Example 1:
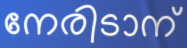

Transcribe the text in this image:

നേരിടാന്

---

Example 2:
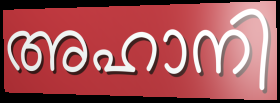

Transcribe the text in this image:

അഹാനി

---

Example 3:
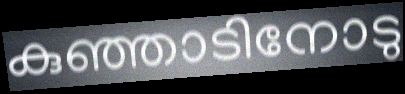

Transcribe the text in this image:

കുഞ്ഞാടിനോടു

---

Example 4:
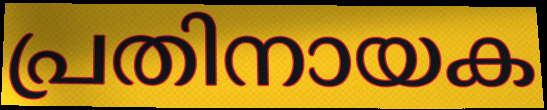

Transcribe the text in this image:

പ്രതിനായക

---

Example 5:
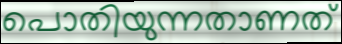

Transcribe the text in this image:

പൊതിയുന്നതാണത്